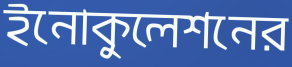
ইনোকুলেশনের